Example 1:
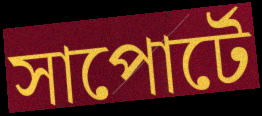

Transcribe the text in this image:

সাপোর্টে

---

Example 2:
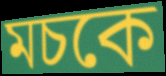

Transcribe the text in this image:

মচকে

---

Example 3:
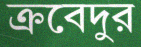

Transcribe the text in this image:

ক্রবেদুর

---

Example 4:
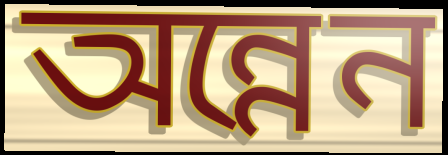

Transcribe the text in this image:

অন্নেন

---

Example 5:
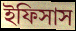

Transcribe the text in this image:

ইফিসাস